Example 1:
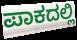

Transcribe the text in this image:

ಪಾಕದಲ್ಲಿ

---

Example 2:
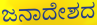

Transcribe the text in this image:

ಜನಾದೇಶದ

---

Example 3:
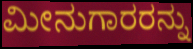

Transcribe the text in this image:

ಮೀನುಗಾರರನ್ನು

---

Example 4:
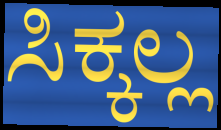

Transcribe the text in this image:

ಸಿಕ್ಕಲ್ಲ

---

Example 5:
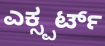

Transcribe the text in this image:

ಎಕ್ಸ್ಪರ್ಟ್